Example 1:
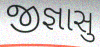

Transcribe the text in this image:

જીજ્ઞાસુ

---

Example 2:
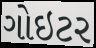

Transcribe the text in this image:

ગોઇટર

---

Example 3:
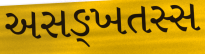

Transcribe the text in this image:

અસઙ્ખતસ્સ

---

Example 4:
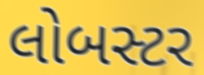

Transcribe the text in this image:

લોબસ્ટર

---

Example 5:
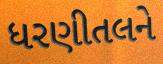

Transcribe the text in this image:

ધરણીતલને